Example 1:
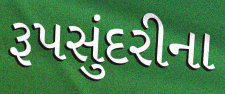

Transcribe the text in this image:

રૂપસુંદરીના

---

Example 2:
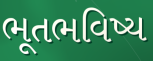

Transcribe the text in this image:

ભૂતભવિષ્ય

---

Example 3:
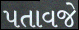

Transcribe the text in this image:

પતાવજે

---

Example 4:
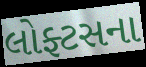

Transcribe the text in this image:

લોફ્ટસના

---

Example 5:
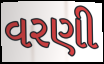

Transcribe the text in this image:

વરણી